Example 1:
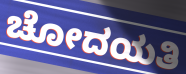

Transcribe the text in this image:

ಚೋದಯತಿ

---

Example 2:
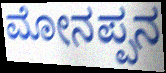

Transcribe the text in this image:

ಮೋನಪ್ಪನ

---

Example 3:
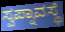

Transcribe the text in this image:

ಸ್ವಪ್ನಾವಸ್ಥೆ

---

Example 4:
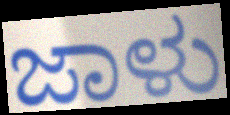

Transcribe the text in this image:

ಜಾಳು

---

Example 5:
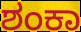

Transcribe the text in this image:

ಶಂಕಾ